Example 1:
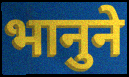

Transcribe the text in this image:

भानुने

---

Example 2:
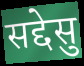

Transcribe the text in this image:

सद्देसु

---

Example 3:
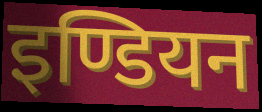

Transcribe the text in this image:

इण्डियन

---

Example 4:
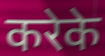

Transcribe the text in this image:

करेके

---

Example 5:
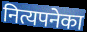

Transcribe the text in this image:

नित्यपनेका